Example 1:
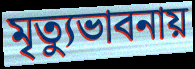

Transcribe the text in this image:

মৃত্যুভাবনায়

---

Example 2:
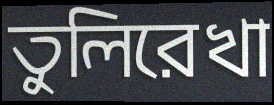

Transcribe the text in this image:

তুলিরেখা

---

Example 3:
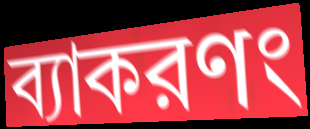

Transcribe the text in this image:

ব্যাকরণং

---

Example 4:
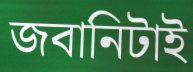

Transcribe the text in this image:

জবানিটাই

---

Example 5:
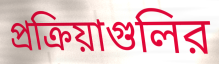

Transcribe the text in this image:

প্রক্রিয়াগুলির